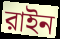
রাইন